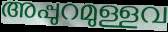
അപ്പുറമുള്ളവ